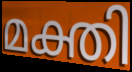
മക്തി